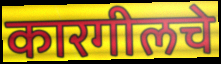
कारगीलचे